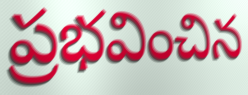
ప్రభవించిన